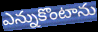
ఎన్నుకొంటాను